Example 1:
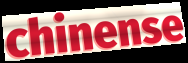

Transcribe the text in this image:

chinense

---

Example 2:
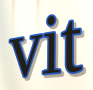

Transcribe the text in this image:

vit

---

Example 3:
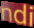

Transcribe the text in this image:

ndi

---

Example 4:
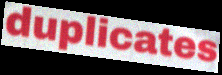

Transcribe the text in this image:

duplicates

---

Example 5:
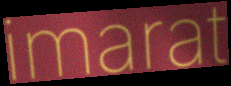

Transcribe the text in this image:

imarat